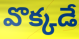
వొక్కడే